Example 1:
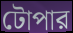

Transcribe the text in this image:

টোপার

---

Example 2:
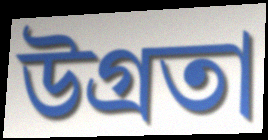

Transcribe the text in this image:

উগ্রতা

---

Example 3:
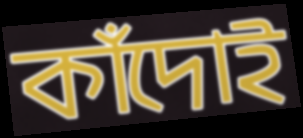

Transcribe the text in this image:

কাঁদোই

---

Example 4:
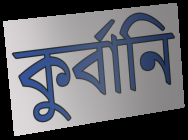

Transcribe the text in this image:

কুর্বানি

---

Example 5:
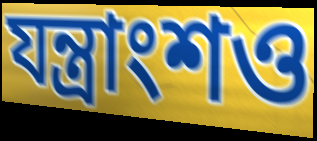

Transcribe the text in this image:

যন্ত্রাংশও